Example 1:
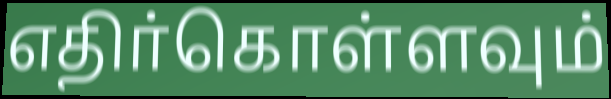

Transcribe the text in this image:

எதிர்கொள்ளவும்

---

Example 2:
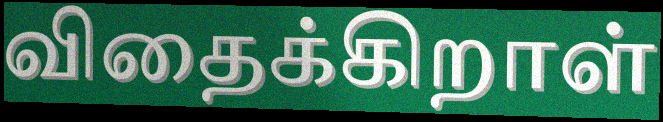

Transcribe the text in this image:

விதைக்கிறாள்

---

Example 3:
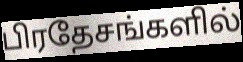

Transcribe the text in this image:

பிரதேசங்களில்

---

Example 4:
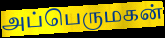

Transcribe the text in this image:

அப்பெருமகன்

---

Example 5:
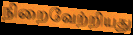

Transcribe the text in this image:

நிறைவேற்றியது